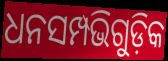
ଧନସମ୍ପଭିଗୁଡ଼ିକ